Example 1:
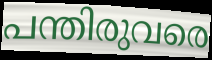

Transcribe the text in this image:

പന്തിരുവരെ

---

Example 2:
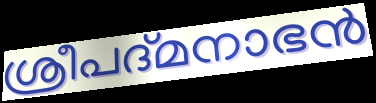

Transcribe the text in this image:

ശ്രീപദ്മനാഭൻ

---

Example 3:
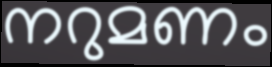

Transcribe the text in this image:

നറുമണം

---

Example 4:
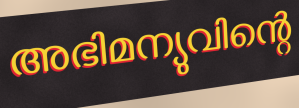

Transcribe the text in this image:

അഭിമന്യുവിന്റെ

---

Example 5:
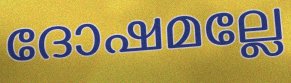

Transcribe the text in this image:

ദോഷമല്ലേ